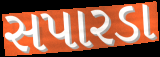
સપારડા